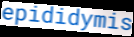
epididymis